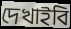
দেখাইবি